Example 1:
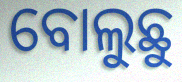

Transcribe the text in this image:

ବୋଲୁଛୁ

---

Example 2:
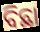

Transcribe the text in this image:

ବିଛା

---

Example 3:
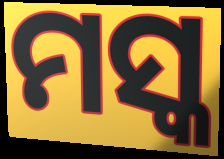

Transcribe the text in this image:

ମସ୍କ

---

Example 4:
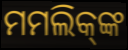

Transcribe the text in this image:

ମମଲିକ୍‌ଙ୍କ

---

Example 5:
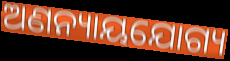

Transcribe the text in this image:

ଅଣନ୍ୟାୟଯୋଗ୍ୟ